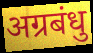
अग्रबंधु